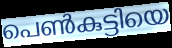
പെൺകുട്ടിയെ